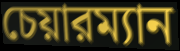
চেয়ারম্যান